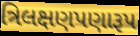
ત્રિલક્ષણપણારૂપ